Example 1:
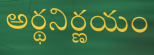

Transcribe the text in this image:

అర్థనిర్ణయం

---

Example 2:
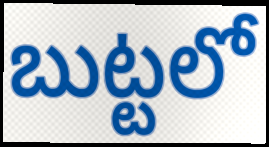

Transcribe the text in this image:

బుట్టలో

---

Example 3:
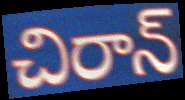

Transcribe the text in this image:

చిరాన్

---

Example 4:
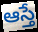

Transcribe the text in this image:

ఆస్తే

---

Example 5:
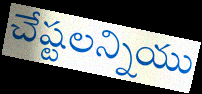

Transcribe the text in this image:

చేష్టలన్నియు